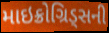
માઇક્રોગ્રિડ્સની